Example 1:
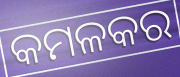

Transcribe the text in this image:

କମଳକର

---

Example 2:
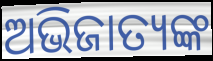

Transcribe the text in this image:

ଅଭିଜାତ୍ୟଙ୍କ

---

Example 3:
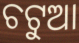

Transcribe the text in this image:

ଚଟୁଆ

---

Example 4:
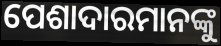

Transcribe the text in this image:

ପେଶାଦାରମାନଙ୍କୁ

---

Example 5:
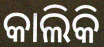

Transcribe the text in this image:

କାଲିକି